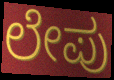
ಲೇಪು